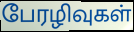
பேரழிவுகள்